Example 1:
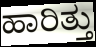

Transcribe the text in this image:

ಹಾರಿತ್ತು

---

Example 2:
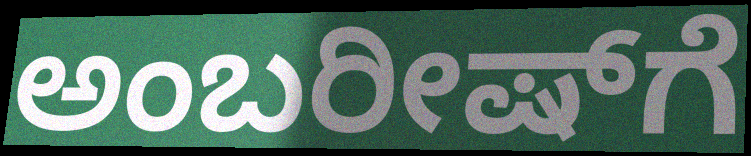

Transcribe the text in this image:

ಅಂಬರೀಷ್‌ಗೆ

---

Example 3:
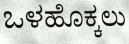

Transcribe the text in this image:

ಒಳಹೊಕ್ಕಲು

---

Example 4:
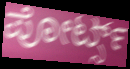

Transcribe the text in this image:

ಪೋರ್ಟ್ಸ್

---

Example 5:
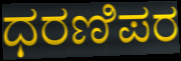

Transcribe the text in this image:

ಧರಣಿಪರ